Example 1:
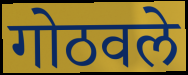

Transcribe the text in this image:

गोठवले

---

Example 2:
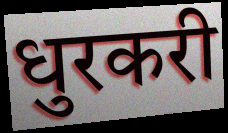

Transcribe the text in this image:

धुरकरी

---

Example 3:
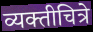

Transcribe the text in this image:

व्यक्तीचित्रे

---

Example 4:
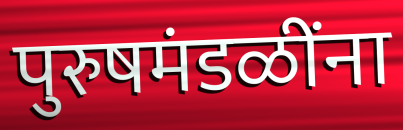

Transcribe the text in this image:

पुरुषमंडळींना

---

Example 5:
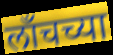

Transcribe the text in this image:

लाँचच्या